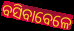
ବସିବାବେଳେ